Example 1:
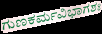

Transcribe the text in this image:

ಗುಣಕರ್ಮವಿಭಾಗಶಃ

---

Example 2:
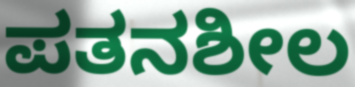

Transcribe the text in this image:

ಪತನಶೀಲ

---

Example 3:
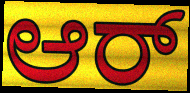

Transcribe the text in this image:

ಆರ್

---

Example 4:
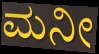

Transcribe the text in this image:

ಮನೀ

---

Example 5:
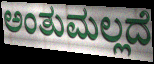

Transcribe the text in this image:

ಅಂತುಮಲ್ಲದೆ